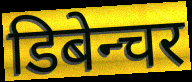
डिबेन्चर